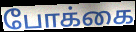
போக்கை